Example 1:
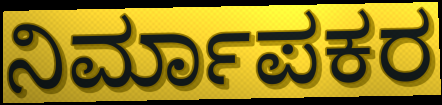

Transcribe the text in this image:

ನಿರ್ಮಾಪಕರ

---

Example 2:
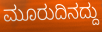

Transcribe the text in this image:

ಮೂರುದಿನದ್ದು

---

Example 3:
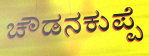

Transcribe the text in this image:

ಚೌಡನಕುಪ್ಪೆ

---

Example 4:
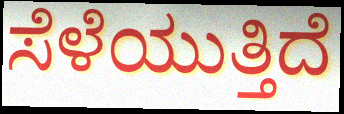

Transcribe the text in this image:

ಸೆಳೆಯುತ್ತಿದೆ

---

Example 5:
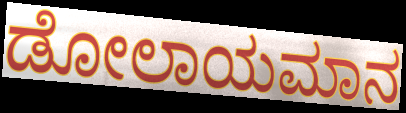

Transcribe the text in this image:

ಡೋಲಾಯಮಾನ